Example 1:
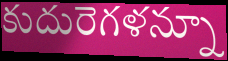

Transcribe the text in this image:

కుదురెగళన్నూ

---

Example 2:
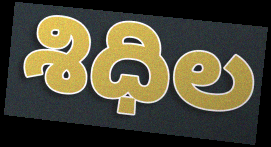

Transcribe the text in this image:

శిధిల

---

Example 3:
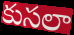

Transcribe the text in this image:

కుసలా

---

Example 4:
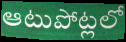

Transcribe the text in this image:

ఆటుపోట్లలో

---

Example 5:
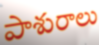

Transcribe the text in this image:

పాశురాలు